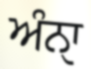
ਅੰਨੑਾ